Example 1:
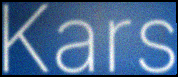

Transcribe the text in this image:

Kars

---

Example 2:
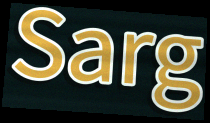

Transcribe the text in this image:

Sarg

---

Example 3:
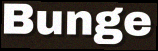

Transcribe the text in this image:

Bunge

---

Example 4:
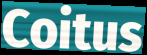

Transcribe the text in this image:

Coitus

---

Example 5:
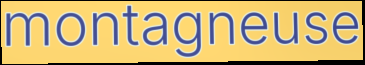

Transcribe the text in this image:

montagneuse